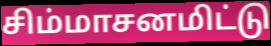
சிம்மாசனமிட்டு